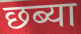
छब्या